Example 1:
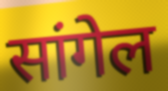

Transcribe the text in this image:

सांगेल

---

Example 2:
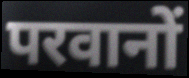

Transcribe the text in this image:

परवानों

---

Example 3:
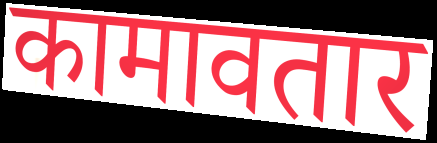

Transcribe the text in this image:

कामावतार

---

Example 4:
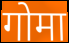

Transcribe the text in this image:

गोमा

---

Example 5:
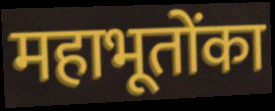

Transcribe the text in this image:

महाभूतोंका